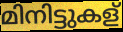
മിനിട്ടുകള്